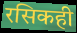
रसिकही